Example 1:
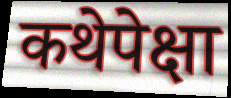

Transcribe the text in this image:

कथेपेक्षा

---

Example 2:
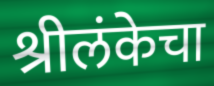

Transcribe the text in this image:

श्रीलंकेचा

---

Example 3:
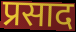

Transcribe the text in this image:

प्रसाद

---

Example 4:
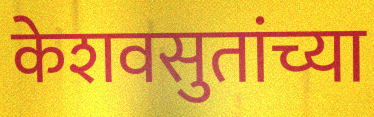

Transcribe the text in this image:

केशवसुतांच्या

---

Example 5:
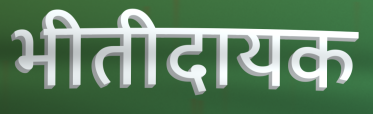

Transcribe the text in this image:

भीतीदायक